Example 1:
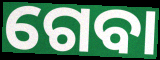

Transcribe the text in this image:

ଗେବା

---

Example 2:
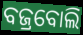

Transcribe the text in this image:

ବଜ୍ରବୋଲି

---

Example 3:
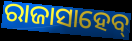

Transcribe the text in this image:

ରାଜାସାହେବ୍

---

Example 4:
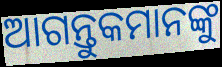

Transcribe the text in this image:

ଆଗନ୍ତୁକମାନଙ୍କୁ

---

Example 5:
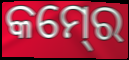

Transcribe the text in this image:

କମ୍‍ରେ